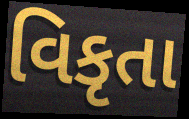
વિકૃતા